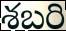
శబరి